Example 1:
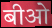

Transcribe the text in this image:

बीओ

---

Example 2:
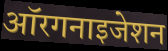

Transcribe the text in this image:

ऑरगनाइजेशन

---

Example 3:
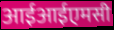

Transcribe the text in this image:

आईआईएमसी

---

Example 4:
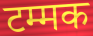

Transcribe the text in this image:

टम्मक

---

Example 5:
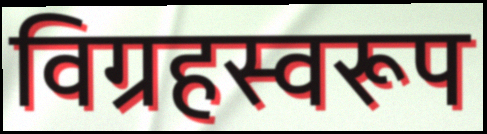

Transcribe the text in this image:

विग्रहस्वरूप